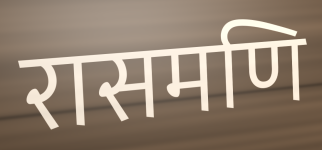
रासमणि